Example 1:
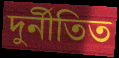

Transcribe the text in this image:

দুৰ্নীতিত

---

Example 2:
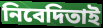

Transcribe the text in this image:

নিবেদিতাই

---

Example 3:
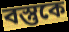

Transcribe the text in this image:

বস্তুকে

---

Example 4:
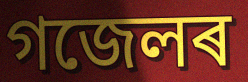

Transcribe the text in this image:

গজেলৰ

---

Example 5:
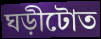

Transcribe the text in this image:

ঘড়ীটোত